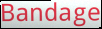
Bandage